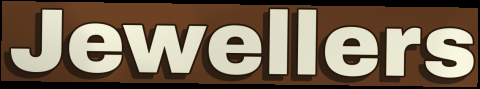
Jewellers